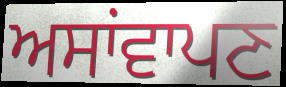
ਅਸਾਂਵਾਪਣ